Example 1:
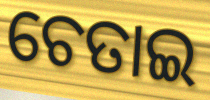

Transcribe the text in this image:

ଚେତାଇ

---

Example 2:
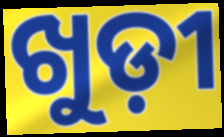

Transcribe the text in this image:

ଖୁଡ଼ୀ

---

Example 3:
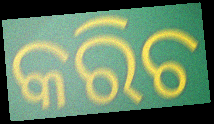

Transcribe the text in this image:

କରିଚ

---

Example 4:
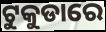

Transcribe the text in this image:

ଟୁକୁଡାରେ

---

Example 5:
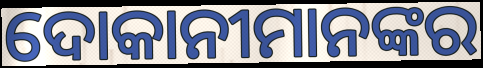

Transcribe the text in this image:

ଦୋକାନୀମାନଙ୍କର